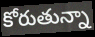
కోరుతున్నా